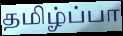
தமிழ்ப்பா